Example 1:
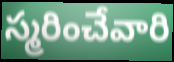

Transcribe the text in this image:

స్మరించేవారి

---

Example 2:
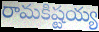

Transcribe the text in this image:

రామకిష్టయ్య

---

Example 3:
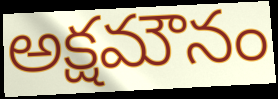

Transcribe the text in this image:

అక్షమౌనం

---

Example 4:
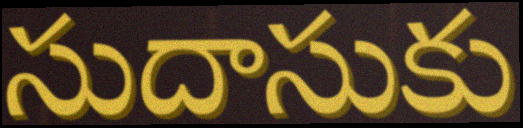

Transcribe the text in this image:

సుదాసుకు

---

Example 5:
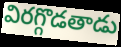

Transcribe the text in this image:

విరగ్గొడతాడు